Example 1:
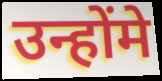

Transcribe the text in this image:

उन्होंमे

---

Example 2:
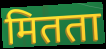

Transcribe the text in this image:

मितता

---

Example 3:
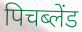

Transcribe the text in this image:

पिचब्लेंड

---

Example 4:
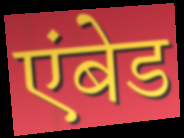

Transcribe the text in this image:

एंबेड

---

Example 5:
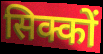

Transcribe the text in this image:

सिक्कों